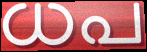
ധപ